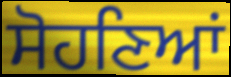
ਸੋਹਣਿਆਂ